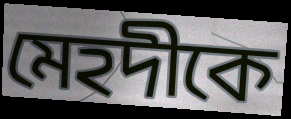
মেহদীকে